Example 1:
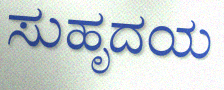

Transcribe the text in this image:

ಸುಹೃದಯ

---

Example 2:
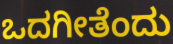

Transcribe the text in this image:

ಒದಗೀತೆಂದು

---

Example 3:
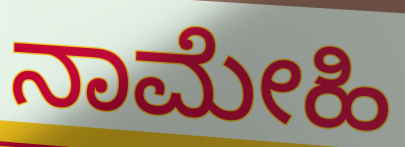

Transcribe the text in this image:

ನಾಮೇಹಿ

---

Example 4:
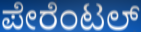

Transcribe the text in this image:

ಪೇರೆಂಟಲ್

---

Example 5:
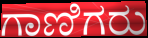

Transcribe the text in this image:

ಗಾಣಿಗರು